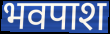
भवपाश